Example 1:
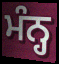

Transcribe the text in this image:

ਮੰਨ੍ਹ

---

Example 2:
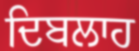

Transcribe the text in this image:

ਦਿਬਲਾਹ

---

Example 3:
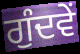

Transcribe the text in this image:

ਗੁੰਦਵੇਂ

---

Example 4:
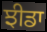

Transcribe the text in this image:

ਝੀਡਾ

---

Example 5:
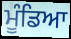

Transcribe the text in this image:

ਮੂੰਡਿਆ